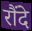
रौंदे